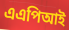
এএপিআই